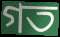
গত